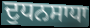
ਦੁਧਨਸਾਧਾ